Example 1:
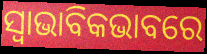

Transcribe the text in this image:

ସ୍ୱାଭାବିକଭାବରେ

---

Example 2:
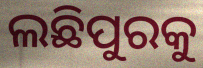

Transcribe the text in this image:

ଲଛିପୁରକୁ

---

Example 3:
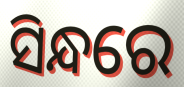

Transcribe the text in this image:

ସିନ୍ଧରେ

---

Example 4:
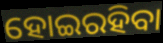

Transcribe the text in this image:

ହୋଇରହିବା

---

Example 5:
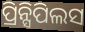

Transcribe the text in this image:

ପ୍ରିନ୍ସିପିଲସ